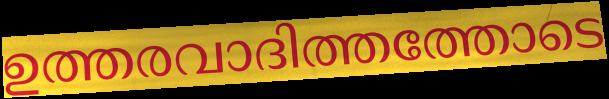
ഉത്തരവാദിത്തത്തോടെ